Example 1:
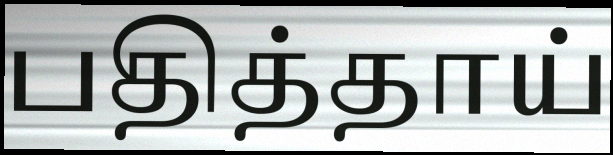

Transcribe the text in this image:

பதித்தாய்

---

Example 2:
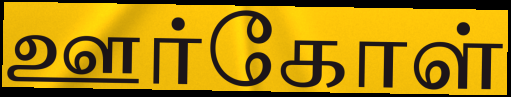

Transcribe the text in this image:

ஊர்கோள்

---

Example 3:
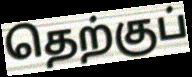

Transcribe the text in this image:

தெற்குப்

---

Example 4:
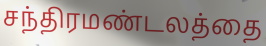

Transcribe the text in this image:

சந்திரமண்டலத்தை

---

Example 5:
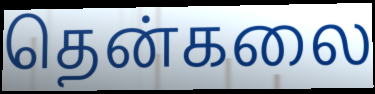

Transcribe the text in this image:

தென்கலை